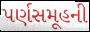
પર્ણસમૂહની